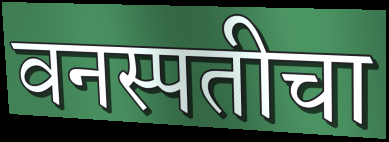
वनस्पतीचा